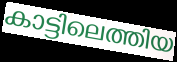
കാട്ടിലെത്തിയ